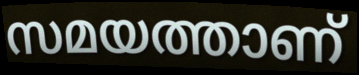
സമയത്താണ്